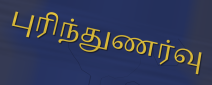
புரிந்துணர்வு